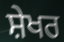
ਸ਼ੇਖਰ